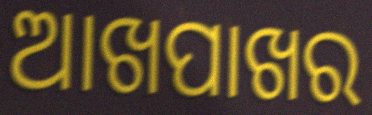
ଆଖପାଖର